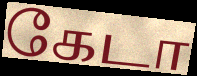
கேடா